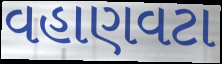
વહાણવટા